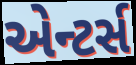
એન્ટર્સ